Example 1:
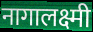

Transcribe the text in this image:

नागालक्ष्मी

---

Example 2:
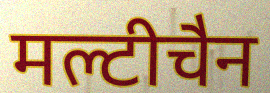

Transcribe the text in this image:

मल्टीचैन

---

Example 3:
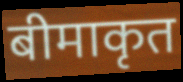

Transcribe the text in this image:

बीमाकृत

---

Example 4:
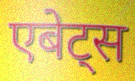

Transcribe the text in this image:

एबेट्स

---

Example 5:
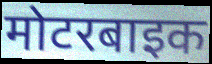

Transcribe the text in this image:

मोटरबाइक